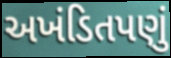
અખંડિતપણું